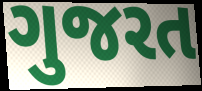
ગુજરત